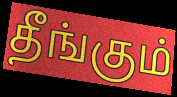
தீங்கும்